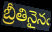
బ్రీతినైనఁ